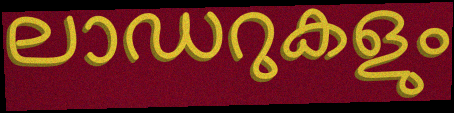
ലാഡറുകളും